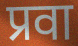
प्रवा